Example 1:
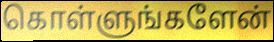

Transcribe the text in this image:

கொள்ளுங்களேன்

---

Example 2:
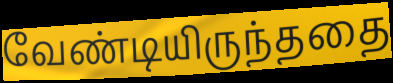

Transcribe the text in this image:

வேண்டியிருந்ததை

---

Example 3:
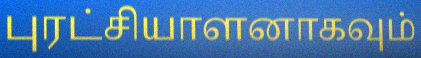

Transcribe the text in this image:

புரட்சியாளனாகவும்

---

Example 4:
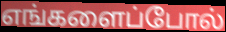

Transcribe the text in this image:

எங்களைப்போல்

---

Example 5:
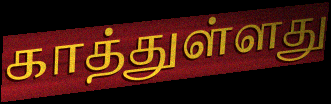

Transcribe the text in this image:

காத்துள்ளது